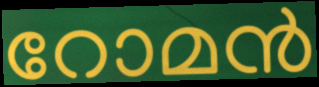
റോമൻ